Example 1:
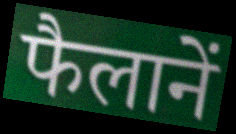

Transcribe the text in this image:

फैलानें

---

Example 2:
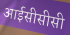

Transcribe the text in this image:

आईसीसीसी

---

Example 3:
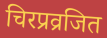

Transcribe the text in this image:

चिरप्रव्रजित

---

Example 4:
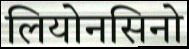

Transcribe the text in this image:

लियोनसिनो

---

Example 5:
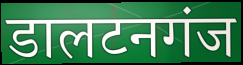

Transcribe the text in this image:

डालटनगंज